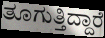
ತೂಗುತ್ತಿದ್ದಾರೆ